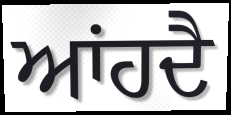
ਆਂਹਦੈ